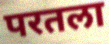
परतला